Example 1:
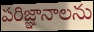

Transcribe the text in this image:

పరిజ్ఞానాలను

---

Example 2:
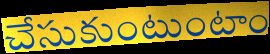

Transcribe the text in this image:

చేసుకుంటుంటాం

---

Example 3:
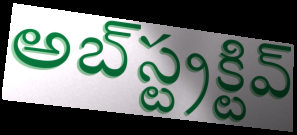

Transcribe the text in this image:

అబ్‌స్ట్రక్టివ్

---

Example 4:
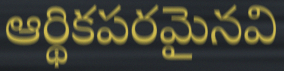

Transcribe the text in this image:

ఆర్థికపరమైనవి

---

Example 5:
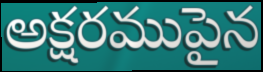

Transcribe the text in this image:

అక్షరముపైన